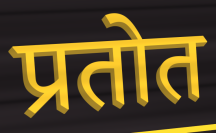
प्रतोत